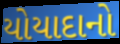
યોયાદાનો